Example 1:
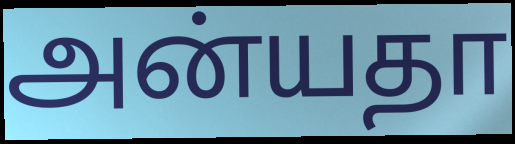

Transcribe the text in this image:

அன்யதா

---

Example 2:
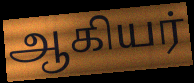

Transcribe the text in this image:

ஆகியர்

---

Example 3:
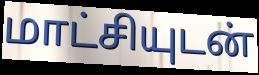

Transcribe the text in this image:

மாட்சியுடன்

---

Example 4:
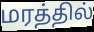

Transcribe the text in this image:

மரத்தில்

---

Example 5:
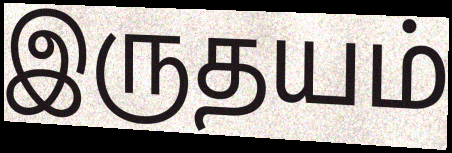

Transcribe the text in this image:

இருதயம்